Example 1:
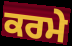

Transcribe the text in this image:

ਕਰਮੇ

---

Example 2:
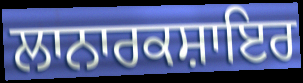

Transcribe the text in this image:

ਲਾਨਾਰਕਸ਼ਾਇਰ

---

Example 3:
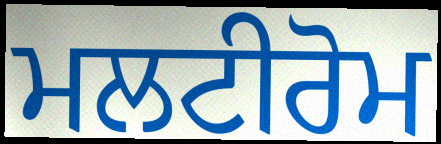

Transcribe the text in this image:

ਮਲਟੀਰੋਮ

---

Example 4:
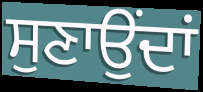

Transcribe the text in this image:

ਸੁਣਾਉਂਦਾਂ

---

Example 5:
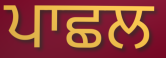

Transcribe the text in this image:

ਪਾਛਲ